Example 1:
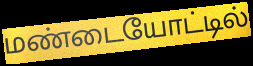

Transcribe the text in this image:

மண்டையோட்டில்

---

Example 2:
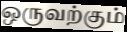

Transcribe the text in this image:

ஒருவற்கும்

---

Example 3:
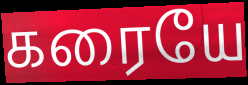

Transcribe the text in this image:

கரையே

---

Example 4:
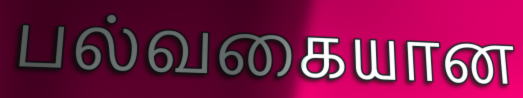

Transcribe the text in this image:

பல்வகையான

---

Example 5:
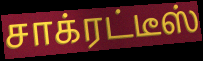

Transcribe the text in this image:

சாக்ரட்டீஸ்